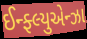
ઈન્ફ્લ્યુએન્ઝા